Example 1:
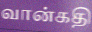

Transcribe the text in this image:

வான்கதி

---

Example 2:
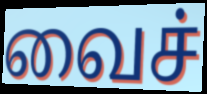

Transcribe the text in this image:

வைச்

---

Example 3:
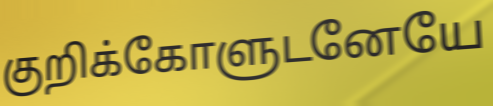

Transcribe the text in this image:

குறிக்கோளுடனேயே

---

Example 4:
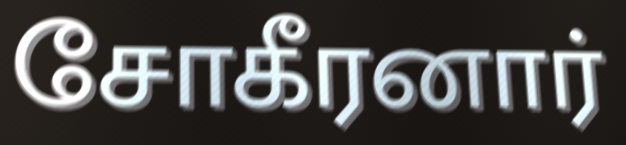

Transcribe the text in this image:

சோகீரனார்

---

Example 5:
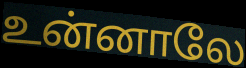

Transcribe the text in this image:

உன்னாலே